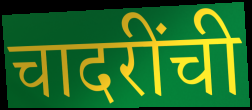
चादरींची